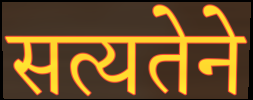
सत्यतेने